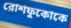
রোশফুকোকে